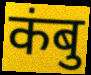
कंबु